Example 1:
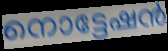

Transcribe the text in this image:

നൊട്ടേഷൻ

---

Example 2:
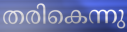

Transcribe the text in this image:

തരികെന്നു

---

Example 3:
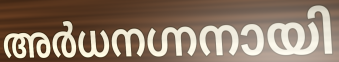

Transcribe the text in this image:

അർധനഗ്നനായി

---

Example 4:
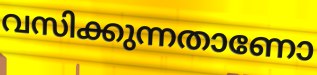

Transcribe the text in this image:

വസിക്കുന്നതാണോ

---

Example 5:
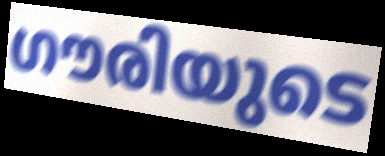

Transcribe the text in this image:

ഗൗരിയുടെ